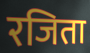
रजिता